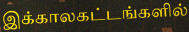
இக்காலகட்டங்களில்